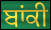
ਬਾਂਕੀ